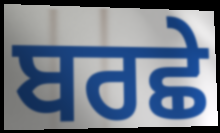
ਬਰਛੇ